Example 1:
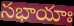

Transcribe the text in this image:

సభాయాః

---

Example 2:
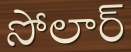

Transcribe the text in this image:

సోలార్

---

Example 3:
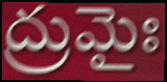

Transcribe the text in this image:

ద్రుమైః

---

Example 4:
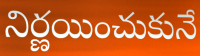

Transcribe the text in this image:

నిర్ణయించుకునే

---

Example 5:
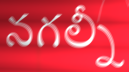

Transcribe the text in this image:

నగల్నీ